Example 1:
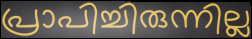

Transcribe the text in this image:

പ്രാപിച്ചിരുന്നില്ല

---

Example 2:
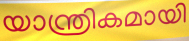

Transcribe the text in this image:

യാന്ത്രികമായി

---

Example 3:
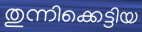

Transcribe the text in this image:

തുന്നിക്കെട്ടിയ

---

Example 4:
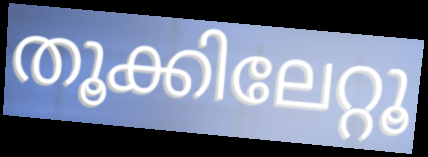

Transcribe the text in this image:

തൂക്കിലേറ്റൂ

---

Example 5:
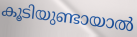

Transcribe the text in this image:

കൂടിയുണ്ടായാൽ